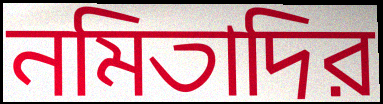
নমিতাদির